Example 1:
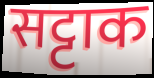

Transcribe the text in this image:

सट्टाक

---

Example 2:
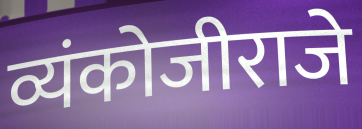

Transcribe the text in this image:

व्यंकोजीराजे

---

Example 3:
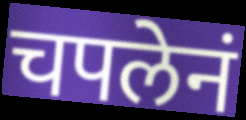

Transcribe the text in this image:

चपलेनं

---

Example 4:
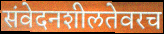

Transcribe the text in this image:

संवेदनशीलतेवरच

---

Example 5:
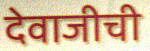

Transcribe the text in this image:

देवाजीची